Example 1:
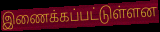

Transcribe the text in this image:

இணைக்கப்பட்டுள்ளன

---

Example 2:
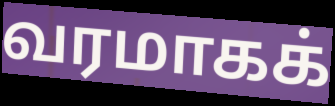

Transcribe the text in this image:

வரமாகக்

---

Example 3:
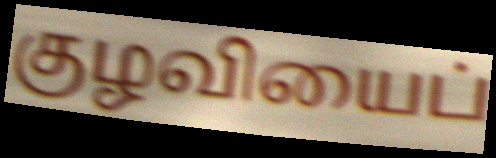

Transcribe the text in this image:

குழவியைப்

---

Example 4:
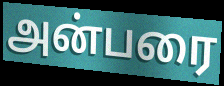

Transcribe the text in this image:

அன்பரை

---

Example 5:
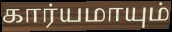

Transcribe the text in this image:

கார்யமாயும்